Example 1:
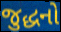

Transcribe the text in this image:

જુદ્ધનો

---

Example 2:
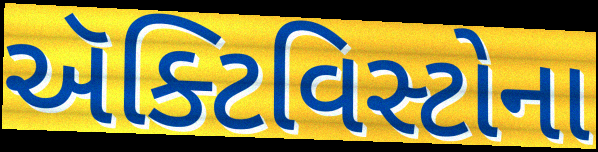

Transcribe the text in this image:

ઍક્ટિવિસ્ટોના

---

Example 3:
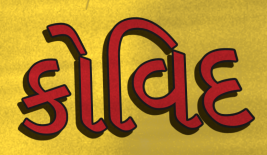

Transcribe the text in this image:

કોવિદ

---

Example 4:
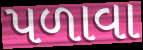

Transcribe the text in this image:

પળાવા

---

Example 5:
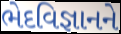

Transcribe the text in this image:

ભેદવિજ્ઞાનને